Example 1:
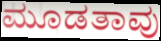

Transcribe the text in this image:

ಮೂಡತಾವು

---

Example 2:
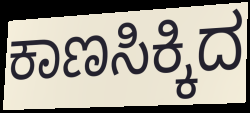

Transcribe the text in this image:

ಕಾಣಸಿಕ್ಕಿದ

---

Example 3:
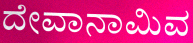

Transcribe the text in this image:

ದೇವಾನಾಮಿವ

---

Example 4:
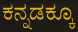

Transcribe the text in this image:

ಕನ್ನಡಕ್ಕೂ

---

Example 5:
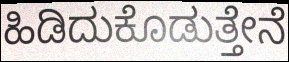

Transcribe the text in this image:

ಹಿಡಿದುಕೊಡುತ್ತೇನೆ